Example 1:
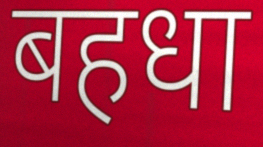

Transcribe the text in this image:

बहधा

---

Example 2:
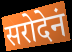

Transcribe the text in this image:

सरोदेनं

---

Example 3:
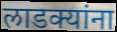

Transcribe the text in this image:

लाडक्यांना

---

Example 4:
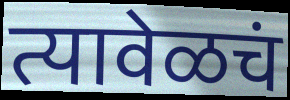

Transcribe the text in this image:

त्यावेळचं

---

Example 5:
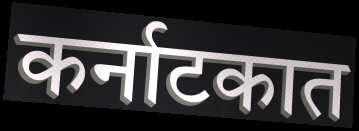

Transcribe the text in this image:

कर्नाटकात